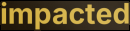
impacted